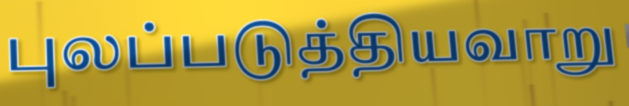
புலப்படுத்தியவாறு